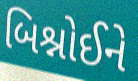
બિશ્નોઈને